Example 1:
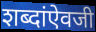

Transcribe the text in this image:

शब्दांऐवजी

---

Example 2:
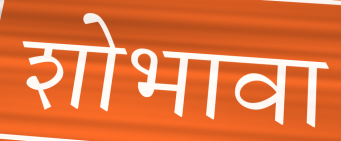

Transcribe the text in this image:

शोभावा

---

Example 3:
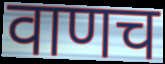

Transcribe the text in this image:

वाणच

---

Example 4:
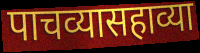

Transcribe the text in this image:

पाचव्यासहाव्या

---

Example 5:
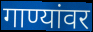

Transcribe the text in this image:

गाण्यांवर